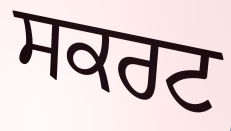
ਸਕਰਟ